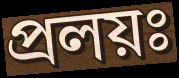
প্রলয়ঃ